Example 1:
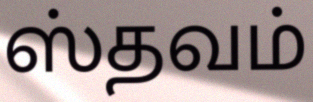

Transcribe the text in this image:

ஸ்தவம்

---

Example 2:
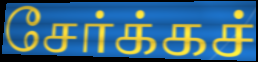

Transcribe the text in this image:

சேர்க்கச்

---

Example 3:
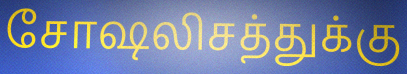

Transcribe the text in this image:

சோஷலிசத்துக்கு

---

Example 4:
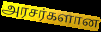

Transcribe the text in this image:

அரசர்களான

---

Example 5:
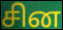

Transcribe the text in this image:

சின